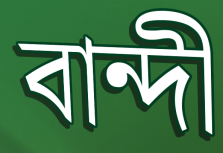
বান্দী